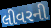
લીવરની